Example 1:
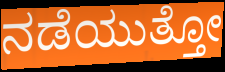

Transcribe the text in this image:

ನಡೆಯುತ್ತೋ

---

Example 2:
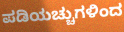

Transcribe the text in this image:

ಪಡಿಯಚ್ಚುಗಳಿಂದ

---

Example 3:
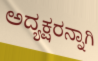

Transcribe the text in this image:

ಅದ್ಯಕ್ಷರನ್ನಾಗಿ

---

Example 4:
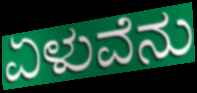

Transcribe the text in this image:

ಏಳುವೆನು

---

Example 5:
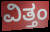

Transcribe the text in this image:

ವಿತ್ತಂ